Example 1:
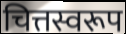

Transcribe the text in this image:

चित्तस्वरूप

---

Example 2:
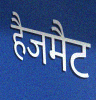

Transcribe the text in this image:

हैजमैट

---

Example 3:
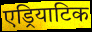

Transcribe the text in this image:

एड्रियाटिक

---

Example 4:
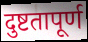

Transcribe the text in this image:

दुष्टतापूर्ण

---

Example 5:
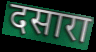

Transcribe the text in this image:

दसारा